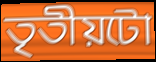
তৃতীয়টো